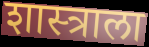
शास्त्राला